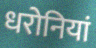
धरोनियां